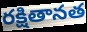
రక్షితానత